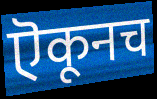
ऎकूनच